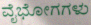
ವೈಭೋಗಗಳು